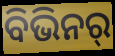
ବିଭିନର୍